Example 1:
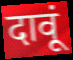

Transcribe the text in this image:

दावूं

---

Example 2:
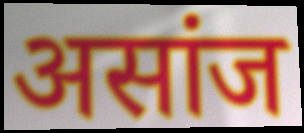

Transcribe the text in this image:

असांज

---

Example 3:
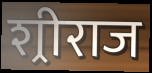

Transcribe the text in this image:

श्रीराज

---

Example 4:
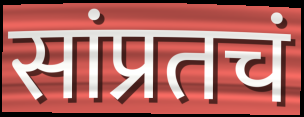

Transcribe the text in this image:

सांप्रतचं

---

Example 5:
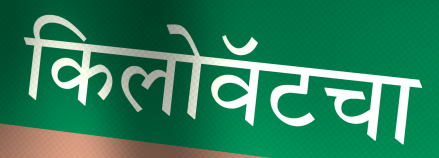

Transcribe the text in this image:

किलोवॅटचा